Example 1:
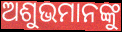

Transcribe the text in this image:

ଅଶୁଭମାନଙ୍କୁ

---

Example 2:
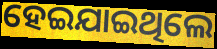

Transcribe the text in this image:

ହେଇଯାଇଥିଲେ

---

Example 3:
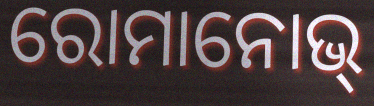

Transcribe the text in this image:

ରୋମାନୋଭ୍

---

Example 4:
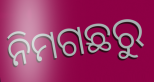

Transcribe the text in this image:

ନିମଗଛରୁ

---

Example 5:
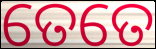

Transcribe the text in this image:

ତେତେ